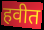
हवीत